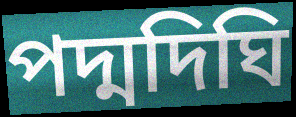
পদ্মদিঘি